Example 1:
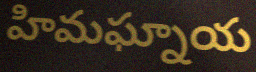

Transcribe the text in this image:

హిమఘ్నాయ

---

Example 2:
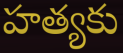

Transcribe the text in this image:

హత్యకు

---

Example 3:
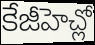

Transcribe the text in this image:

కేజీహెచ్లో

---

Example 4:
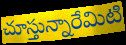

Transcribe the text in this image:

చూస్తున్నారేమిటి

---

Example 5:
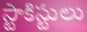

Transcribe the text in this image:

స్టాకిస్టులు